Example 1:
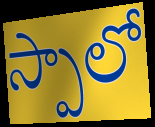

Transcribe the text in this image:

స్పాలో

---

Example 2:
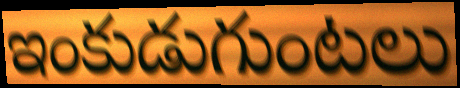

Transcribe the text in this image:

ఇంకుడుగుంటలు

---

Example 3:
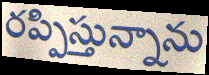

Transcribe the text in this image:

రప్పిస్తున్నాను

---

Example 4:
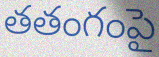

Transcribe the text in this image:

తతంగంపై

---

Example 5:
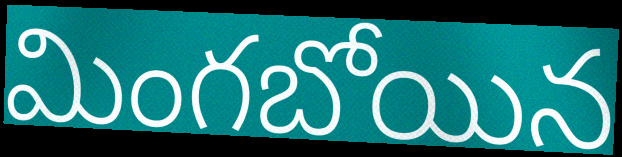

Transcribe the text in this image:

మింగబోయిన